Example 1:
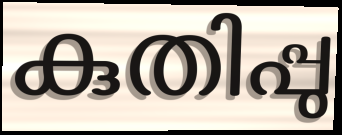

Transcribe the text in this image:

കുതിപ്പു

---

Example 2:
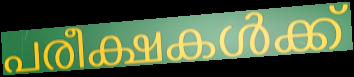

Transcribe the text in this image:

പരീക്ഷകൾക്ക്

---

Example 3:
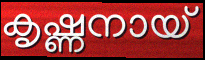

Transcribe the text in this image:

കൃഷ്ണനായ്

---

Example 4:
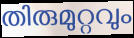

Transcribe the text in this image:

തിരുമുറ്റവും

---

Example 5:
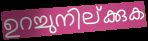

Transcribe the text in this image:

ഉറച്ചുനില്ക്കുക